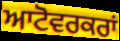
ਆਟੋਵਰਕਰਾਂ